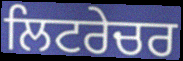
ਲਿਟਰੇਚਰ